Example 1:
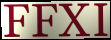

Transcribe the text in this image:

FFXI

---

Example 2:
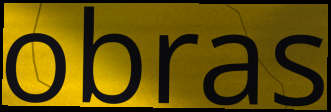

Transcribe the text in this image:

obras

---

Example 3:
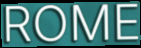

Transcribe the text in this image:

ROME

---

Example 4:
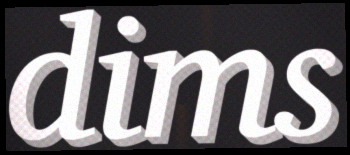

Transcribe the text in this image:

dims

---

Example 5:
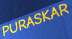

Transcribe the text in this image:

PURASKAR